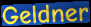
Geldner